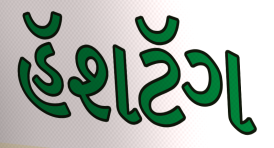
હૅશટૅગ